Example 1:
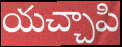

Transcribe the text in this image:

యచ్చాపి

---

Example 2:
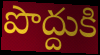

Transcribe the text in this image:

పొద్దుకి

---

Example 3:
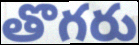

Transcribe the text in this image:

తొగరు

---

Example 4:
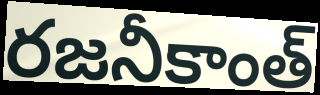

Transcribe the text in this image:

రజనీకాంత్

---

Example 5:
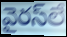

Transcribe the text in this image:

వైరస్‌లే